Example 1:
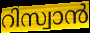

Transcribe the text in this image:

റിസ്വാൻ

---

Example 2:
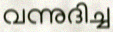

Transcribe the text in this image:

വന്നുദിച്ച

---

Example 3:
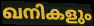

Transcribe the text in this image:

ഖനികളും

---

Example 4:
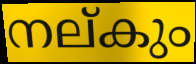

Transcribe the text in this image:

നല്കും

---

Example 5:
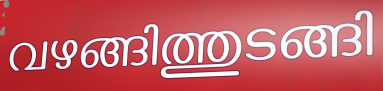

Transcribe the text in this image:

വഴങ്ങിത്തുടങ്ങി